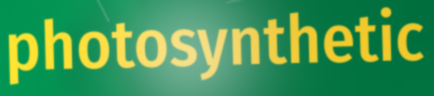
photosynthetic